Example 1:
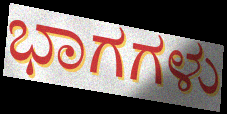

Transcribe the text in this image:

ಭಾಗಗಳು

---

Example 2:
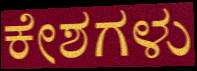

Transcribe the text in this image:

ಕೇಶಗಳು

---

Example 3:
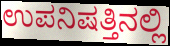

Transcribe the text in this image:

ಉಪನಿಷತ್ತಿನಲ್ಲಿ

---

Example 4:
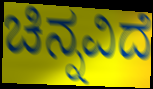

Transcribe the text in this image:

ಚಿನ್ನವಿದೆ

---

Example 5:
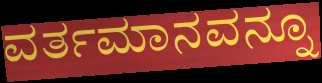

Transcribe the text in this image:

ವರ್ತಮಾನವನ್ನೂ